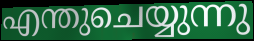
എന്തുചെയ്യുന്നു